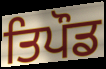
ਤਿਪੌਡ